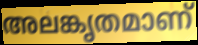
അലങ്കൃതമാണ്